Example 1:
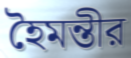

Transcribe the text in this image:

হৈমন্তীর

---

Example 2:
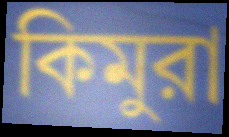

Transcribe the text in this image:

কিমুরা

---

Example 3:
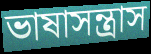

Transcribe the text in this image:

ভাষাসন্ত্রাস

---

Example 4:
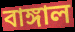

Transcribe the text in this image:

বাঙ্গাল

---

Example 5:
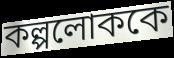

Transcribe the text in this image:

কল্পলোককে